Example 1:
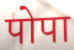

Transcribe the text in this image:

पोपा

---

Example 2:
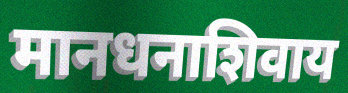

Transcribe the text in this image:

मानधनाशिवाय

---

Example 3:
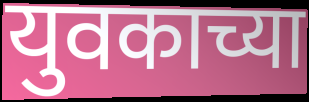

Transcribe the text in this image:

युवकाच्या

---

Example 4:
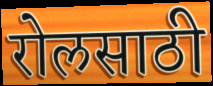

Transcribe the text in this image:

रोलसाठी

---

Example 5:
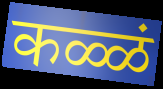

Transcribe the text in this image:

कळ्ळं